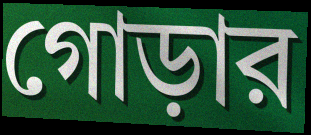
গোড়ার